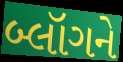
બ્લૉગને